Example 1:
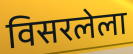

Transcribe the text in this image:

विसरलेला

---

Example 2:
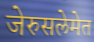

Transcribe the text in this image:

जेरुसलेमेत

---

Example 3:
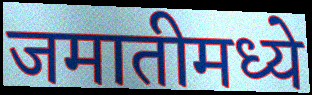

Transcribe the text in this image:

जमातीमध्ये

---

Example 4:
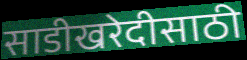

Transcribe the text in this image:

साडीखरेदीसाठी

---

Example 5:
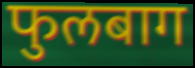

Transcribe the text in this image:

फुलबाग